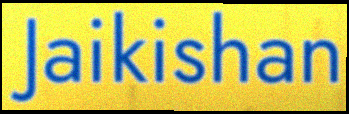
Jaikishan